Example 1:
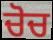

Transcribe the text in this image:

ਚੋਚ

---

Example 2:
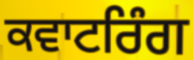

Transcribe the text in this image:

ਕਵਾਟਰਿੰਗ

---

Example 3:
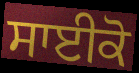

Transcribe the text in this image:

ਸਾਈਕੋ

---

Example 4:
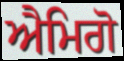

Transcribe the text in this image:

ਐਮਿਗੋ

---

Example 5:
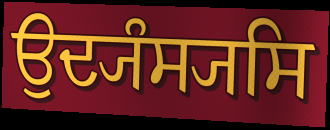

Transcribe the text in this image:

ਉਦ੍ਯੰਸ੍ਯਸਿ